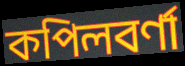
কপিলবর্ণা